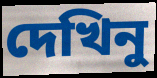
দেখিনু